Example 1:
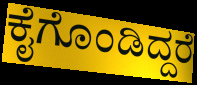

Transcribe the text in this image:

ಕೈಗೊಂಡಿದ್ದರೆ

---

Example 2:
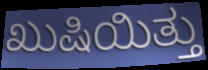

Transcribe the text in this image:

ಖುಷಿಯಿತ್ತು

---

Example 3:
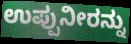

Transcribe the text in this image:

ಉಪ್ಪುನೀರನ್ನು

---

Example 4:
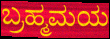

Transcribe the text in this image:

ಬ್ರಹ್ಮಮಯ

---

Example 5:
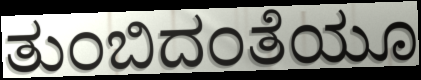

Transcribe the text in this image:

ತುಂಬಿದಂತೆಯೂ